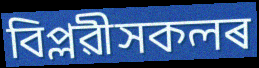
বিপ্লৱীসকলৰ